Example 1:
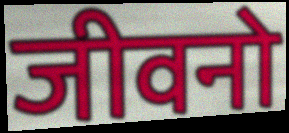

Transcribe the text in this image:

जीवनो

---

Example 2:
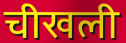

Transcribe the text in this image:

चीखली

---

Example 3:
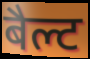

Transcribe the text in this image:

बैल्ट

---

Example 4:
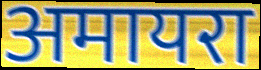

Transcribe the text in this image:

अमायरा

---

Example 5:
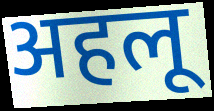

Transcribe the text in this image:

अहलू